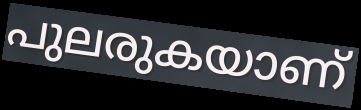
പുലരുകയാണ്